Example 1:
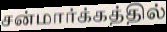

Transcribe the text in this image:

சன்மார்க்கத்தில்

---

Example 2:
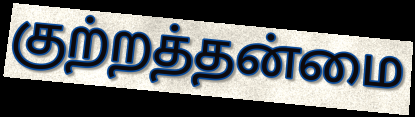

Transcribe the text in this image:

குற்றத்தன்மை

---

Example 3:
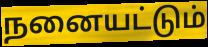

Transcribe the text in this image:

நனையட்டும்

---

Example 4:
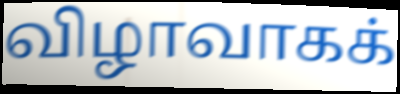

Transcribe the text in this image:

விழாவாகக்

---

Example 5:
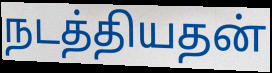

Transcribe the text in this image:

நடத்தியதன்